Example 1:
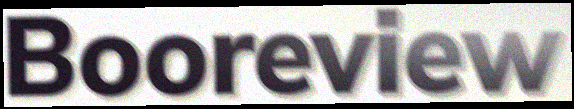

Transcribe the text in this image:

Booreview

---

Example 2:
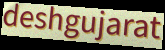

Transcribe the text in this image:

deshgujarat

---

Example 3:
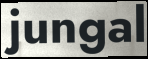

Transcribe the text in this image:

jungal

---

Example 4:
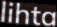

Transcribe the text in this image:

lihta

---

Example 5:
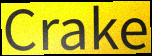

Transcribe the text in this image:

Crake